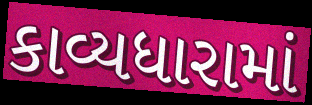
કાવ્યધારામાં